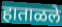
हाताळले